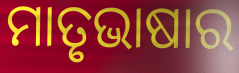
ମାତୃଭାଷାର